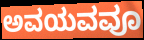
ಅವಯವವೂ